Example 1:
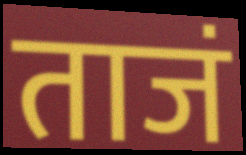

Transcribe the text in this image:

ताजं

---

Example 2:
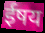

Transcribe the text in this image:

ईषय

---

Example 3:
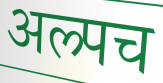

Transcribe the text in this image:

अल्पच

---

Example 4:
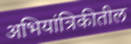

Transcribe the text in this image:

अभियांत्रिकीतील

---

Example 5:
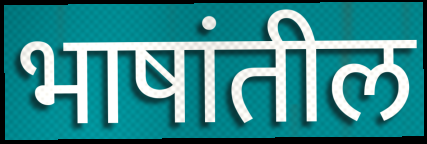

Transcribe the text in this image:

भाषांतील